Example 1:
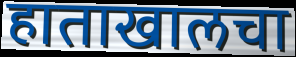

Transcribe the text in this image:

हाताखालचा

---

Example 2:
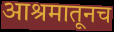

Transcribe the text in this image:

आश्रमातूनच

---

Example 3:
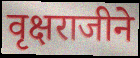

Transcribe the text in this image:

वृक्षराजीने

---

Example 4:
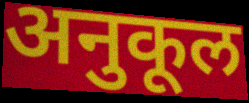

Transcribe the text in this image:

अनुकूल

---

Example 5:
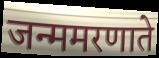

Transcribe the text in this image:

जन्ममरणाते